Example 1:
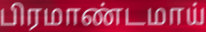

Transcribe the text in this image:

பிரமாண்டமாய்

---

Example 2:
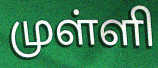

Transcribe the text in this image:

முள்ளி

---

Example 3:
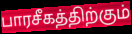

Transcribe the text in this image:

பாரசீகத்திற்கும்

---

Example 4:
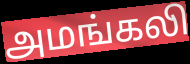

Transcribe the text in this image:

அமங்கலி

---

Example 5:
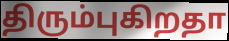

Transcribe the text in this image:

திரும்புகிறதா